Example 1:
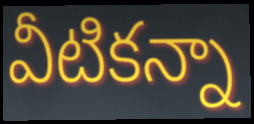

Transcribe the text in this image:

వీటికన్నా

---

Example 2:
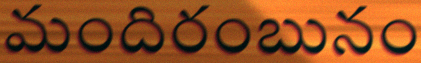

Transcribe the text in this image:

మందిరంబునం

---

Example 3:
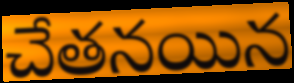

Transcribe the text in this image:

చేతనయిన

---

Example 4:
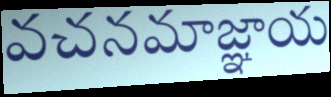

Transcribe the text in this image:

వచనమాజ్ఞాయ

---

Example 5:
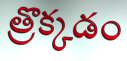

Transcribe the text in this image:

త్రొక్కడం